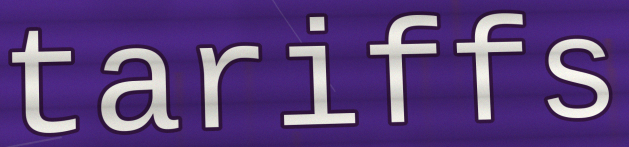
tariffs